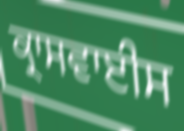
ਕ੍ਰਾਸਵਾਈਸ